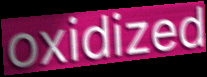
oxidized